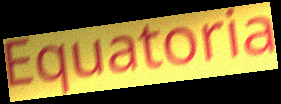
Equatoria